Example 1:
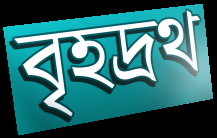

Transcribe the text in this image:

বৃহদ্রথ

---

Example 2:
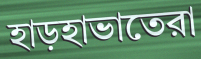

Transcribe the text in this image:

হাড়হাভাতেরা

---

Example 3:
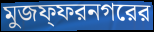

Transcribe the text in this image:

মুজফ্ফরনগরের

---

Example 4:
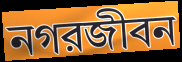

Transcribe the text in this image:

নগরজীবন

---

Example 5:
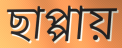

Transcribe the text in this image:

ছাপ্পায়